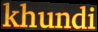
khundi